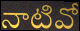
నాటివో